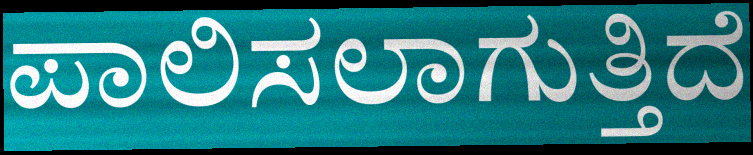
ಪಾಲಿಸಲಾಗುತ್ತಿದೆ